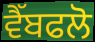
ਵੈੱਬਫਲੋ